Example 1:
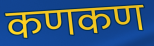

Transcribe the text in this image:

कणकण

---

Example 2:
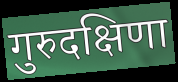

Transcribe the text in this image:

गुरुदक्षिणा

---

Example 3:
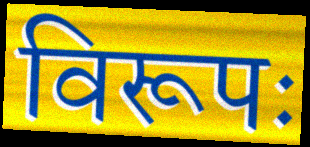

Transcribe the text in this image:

विरूपः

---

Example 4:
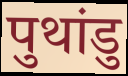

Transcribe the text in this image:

पुथांडु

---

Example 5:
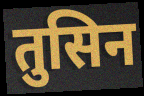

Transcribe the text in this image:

तुसिन